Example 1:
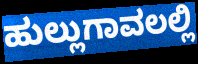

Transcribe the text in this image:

ಹುಲ್ಲುಗಾವಲಲ್ಲಿ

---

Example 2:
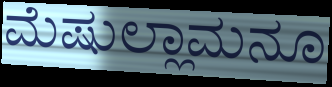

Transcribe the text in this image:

ಮೆಷುಲ್ಲಾಮನೂ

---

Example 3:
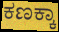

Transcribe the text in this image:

ಕಣಕ್ಕಾ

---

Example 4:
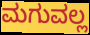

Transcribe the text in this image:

ಮಗುವಲ್ಲ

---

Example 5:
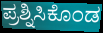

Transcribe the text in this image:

ಪ್ರಶ್ನಿಸಿಕೊಂಡ